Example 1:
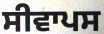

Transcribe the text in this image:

ਸੀਵਾਪਸ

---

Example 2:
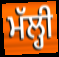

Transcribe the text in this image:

ਮੱਲ੍ਹੀ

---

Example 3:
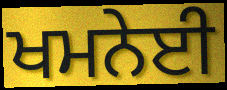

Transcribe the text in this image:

ਖਮਨੇਈ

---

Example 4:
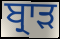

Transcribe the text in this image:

ਬ੍ਰਾੜ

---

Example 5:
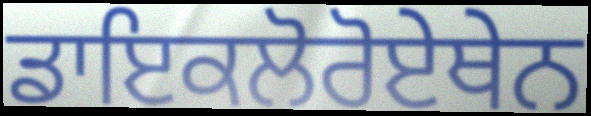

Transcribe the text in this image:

ਡਾਇਕਲੋਰੋਏਥੇਨ